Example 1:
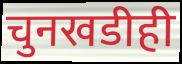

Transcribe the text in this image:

चुनखडीही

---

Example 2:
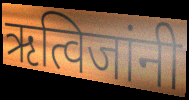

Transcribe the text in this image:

ऋत्विजांनी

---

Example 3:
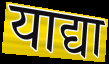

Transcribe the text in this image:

याद्या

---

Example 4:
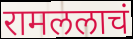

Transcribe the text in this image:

रामललाचं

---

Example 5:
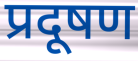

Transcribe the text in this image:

प्रदूषण